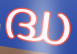
ദ്ധ